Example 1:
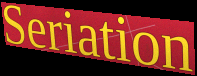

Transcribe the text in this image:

Seriation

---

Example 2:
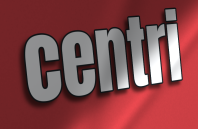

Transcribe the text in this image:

centri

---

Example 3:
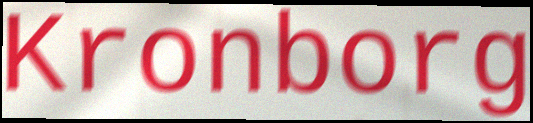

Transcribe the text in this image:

Kronborg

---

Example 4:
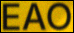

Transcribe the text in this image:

EAO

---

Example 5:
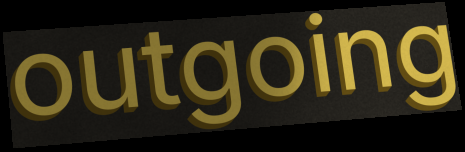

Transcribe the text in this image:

outgoing